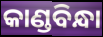
କାଣ୍ଡବିନ୍ଧା